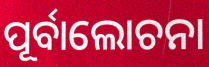
ପୂର୍ବାଲୋଚନା